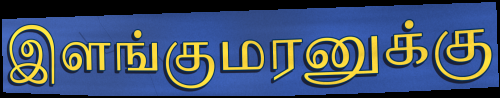
இளங்குமரனுக்கு